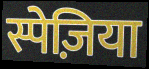
स्पेज़िया